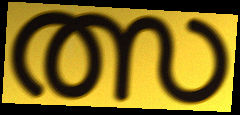
ത്സ